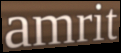
amrit